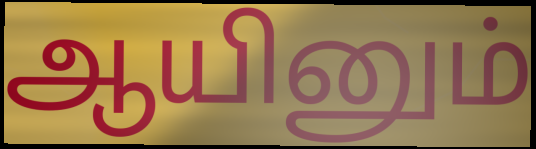
ஆயினும்